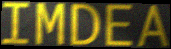
IMDEA